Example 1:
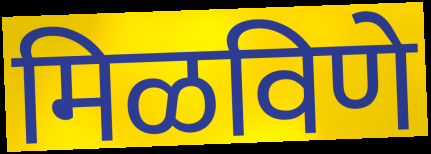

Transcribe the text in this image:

मिळविणे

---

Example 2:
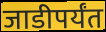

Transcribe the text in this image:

जाडीपर्यंत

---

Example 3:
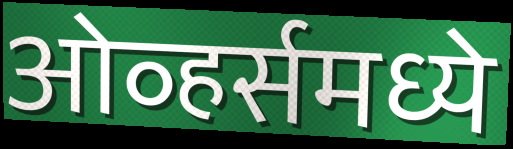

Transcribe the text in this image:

ओव्हर्समध्ये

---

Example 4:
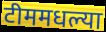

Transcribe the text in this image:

टीममधल्या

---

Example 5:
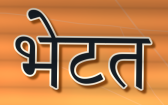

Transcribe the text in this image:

भेटत